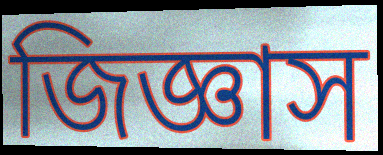
জিজ্ঞাস